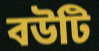
বউটি